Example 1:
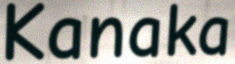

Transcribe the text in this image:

Kanaka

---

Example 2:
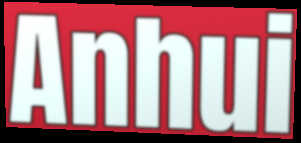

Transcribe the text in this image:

Anhui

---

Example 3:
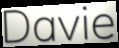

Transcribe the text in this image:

Davie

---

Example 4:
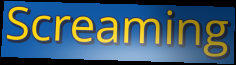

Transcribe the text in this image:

Screaming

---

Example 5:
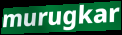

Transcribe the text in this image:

murugkar